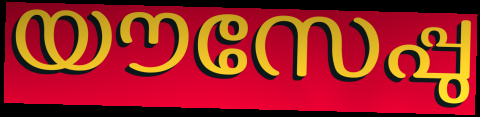
യൗസേപ്പു